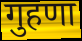
गुहणा